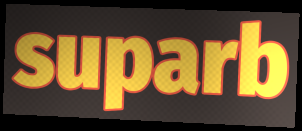
suparb